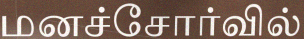
மனச்சோர்வில்